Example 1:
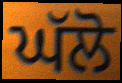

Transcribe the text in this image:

ਘੱਲੋ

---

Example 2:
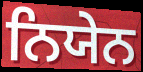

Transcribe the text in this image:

ਨਿਯੇਨ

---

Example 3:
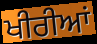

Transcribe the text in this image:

ਖੀਰੀਆਂ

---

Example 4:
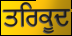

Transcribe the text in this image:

ਤਰਿਕੂਦ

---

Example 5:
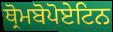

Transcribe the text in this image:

ਥ੍ਰੋਮਬੋਪੋਏਟਿਨ